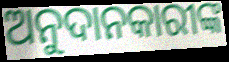
ଅନୁଦାନକାରୀଙ୍କ